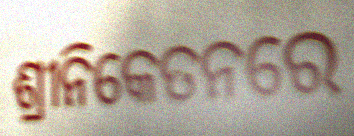
ଶ୍ରୀନିକେତନରେ